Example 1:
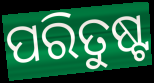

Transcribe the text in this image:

ପରିତୁଷ୍ଟ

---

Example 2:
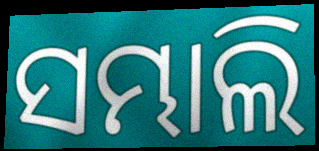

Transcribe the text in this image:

ସମ୍ଭାଲି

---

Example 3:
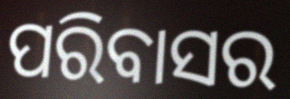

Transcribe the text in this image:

ପରିବାସର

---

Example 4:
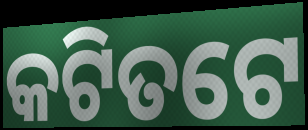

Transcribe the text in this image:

କଟିତଟେ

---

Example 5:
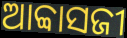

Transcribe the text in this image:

ଆବ୍ବାସଜୀ